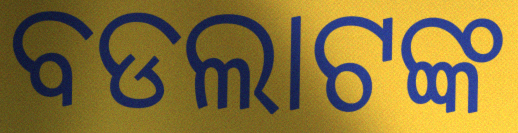
ବଡଲାଟଙ୍କ